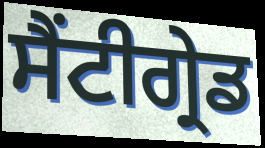
ਸੈਂਟੀਗ੍ਰੇਡ